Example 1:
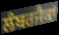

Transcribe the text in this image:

ਲੰਬਰਜੈਕਾਂ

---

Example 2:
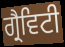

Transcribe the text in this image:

ਗ੍ਰੈਵਿਟੀ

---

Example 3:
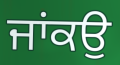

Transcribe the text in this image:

ਜਾਂਕਉ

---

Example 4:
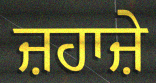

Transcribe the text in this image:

ਜ਼ਹਾਜ਼ੇ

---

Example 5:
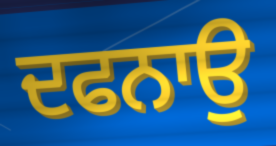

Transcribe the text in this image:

ਦਫਨਾਉ